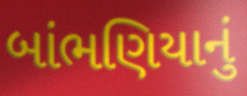
બાંભણિયાનું